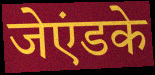
जेएंडके